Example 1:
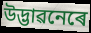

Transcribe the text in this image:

উদ্ভাৱনেৰে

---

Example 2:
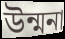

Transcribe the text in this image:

উন্মনা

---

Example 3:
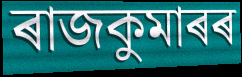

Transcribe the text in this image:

ৰাজকুমাৰৰ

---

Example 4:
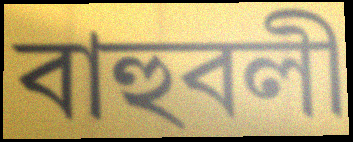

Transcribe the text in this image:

বাহুবলী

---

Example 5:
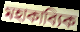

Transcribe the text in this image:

মহাকাব্যিক